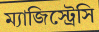
ম্যাজিস্ট্রেসি